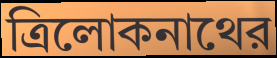
ত্রিলোকনাথের